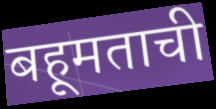
बहूमताची